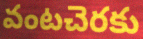
వంటచెరకు